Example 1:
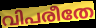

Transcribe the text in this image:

വിപരീതേ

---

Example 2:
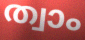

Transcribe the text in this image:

ത്വാം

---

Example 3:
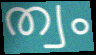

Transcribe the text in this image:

ത്വം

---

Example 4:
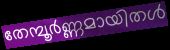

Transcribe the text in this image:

തേമ്പൂർണ്ണമായിതൾ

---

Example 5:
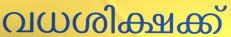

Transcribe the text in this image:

വധശിക്ഷക്ക്